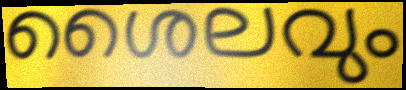
ശൈലവും